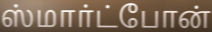
ஸ்மார்ட்போன்